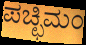
ಪಚ್ಛಿಮಂ